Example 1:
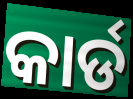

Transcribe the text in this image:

କାର୍ଡ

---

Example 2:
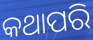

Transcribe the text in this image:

କଥାପରି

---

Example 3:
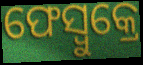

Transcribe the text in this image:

ଫେସ୍ବୁକ୍ରେ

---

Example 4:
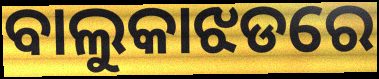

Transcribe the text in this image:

ବାଲୁକାଝଡରେ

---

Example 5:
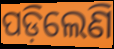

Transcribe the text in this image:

ପଡ଼ିଲେଣି